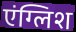
एंग्लिश